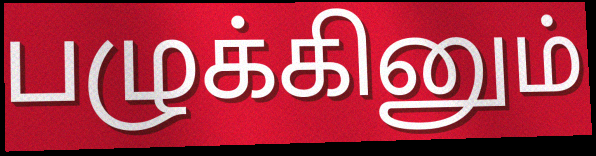
பழுக்கினும்